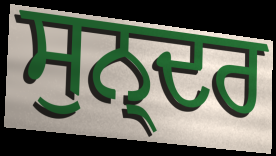
ਸੁਨ੍ਦਰ